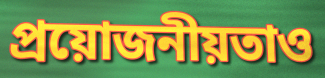
প্ৰয়োজনীয়তাও